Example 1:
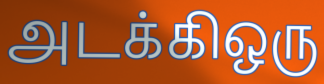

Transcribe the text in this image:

அடக்கிஒரு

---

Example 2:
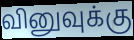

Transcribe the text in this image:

வினுவுக்கு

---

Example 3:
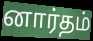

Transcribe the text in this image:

னார்தம்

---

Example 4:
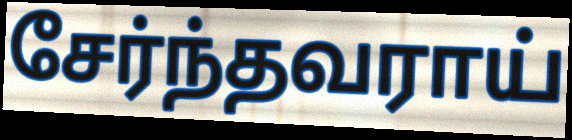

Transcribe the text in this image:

சேர்ந்தவராய்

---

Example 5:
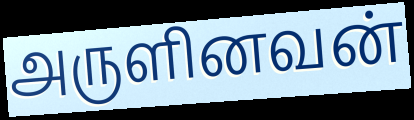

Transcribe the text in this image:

அருளினவன்